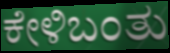
ಕೇಳಿಬಂತು